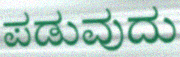
ಪಡುವುದು